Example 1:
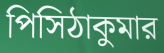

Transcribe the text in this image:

পিসিঠাকুমার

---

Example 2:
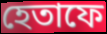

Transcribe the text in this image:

হেতাফে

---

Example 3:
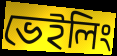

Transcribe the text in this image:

ভেইলিং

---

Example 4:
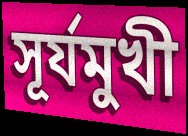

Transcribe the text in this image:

সূর্যমুখী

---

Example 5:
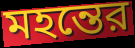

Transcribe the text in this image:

মহন্তের